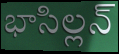
భాసిల్లన్